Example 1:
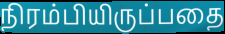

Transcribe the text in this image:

நிரம்பியிருப்பதை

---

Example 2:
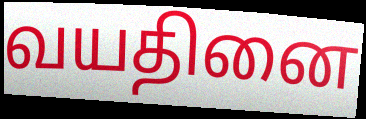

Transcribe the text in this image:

வயதினை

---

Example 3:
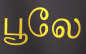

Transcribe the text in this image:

பூலே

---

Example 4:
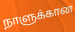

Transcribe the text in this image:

நாளுக்கான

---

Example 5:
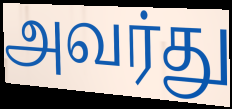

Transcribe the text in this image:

அவர்து